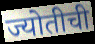
ज्योतीची